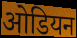
ओडियन